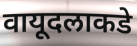
वायूदलाकडे